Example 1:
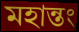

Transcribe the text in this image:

মহান্তং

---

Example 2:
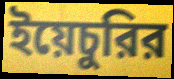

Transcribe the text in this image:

ইয়েচুরির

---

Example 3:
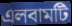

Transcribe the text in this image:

এলবামটি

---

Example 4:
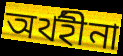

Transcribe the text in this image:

অর্থহীনা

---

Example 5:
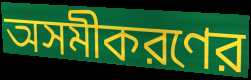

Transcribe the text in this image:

অসমীকরণের